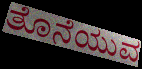
ತೊನೆಯುವ